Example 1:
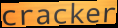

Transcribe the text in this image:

cracker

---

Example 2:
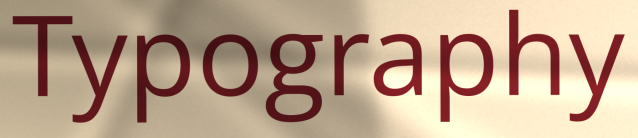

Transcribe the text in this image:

Typography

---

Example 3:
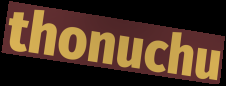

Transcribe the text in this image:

thonuchu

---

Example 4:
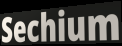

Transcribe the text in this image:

Sechium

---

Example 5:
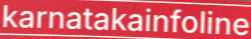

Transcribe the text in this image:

karnatakainfoline